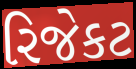
રિજેકટ